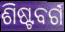
ଶିଷ୍ଟବର୍ଗ